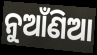
ନୁଆଁଣିଆ